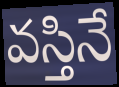
వస్తినే